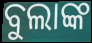
ବୁଲାଙ୍କ